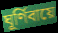
ঘূর্ণিবায়ে